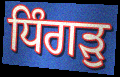
ਧਿੰਗੜੁ